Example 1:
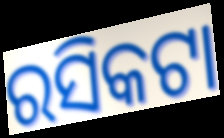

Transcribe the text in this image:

ରସିକଟା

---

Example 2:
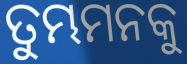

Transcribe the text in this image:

ତୁମ୍ଭମନକୁ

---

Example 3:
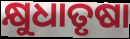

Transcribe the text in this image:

କ୍ଷୁଧାତୃଷା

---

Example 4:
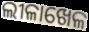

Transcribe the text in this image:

ଲୀଳାଖେଳ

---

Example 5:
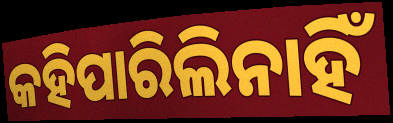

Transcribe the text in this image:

କହିପାରିଲିନାହିଁ